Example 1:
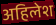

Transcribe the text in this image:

अहिलेश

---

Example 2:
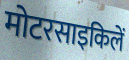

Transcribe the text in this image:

मोटरसाइकिलें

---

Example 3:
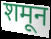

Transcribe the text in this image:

शमून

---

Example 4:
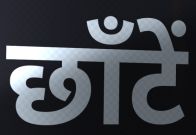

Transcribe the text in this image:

छाँटें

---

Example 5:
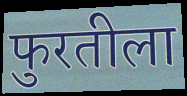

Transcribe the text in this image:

फुरतीला